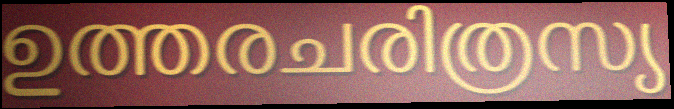
ഉത്തരചരിത്രസ്യ